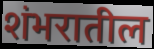
शंभरातील